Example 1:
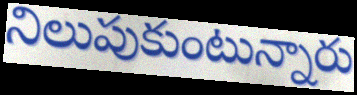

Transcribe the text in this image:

నిలుపుకుంటున్నారు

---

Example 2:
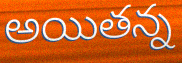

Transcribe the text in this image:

అయితన్న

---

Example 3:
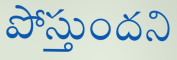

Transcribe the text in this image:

పోస్తుందని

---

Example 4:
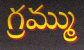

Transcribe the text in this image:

గ్రమ్ము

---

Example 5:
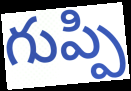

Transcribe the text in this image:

గుప్పి